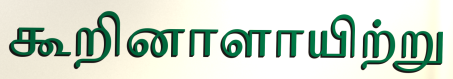
கூறினாளாயிற்று